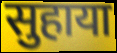
सुहाया